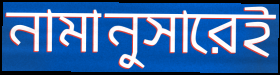
নামানুসারেই